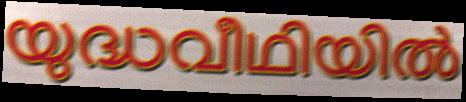
യുദ്ധവീഥിയിൽ